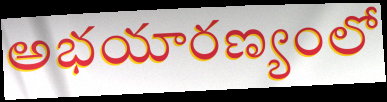
అభయారణ్యంలో